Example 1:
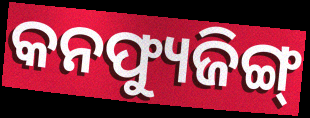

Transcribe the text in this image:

କନଫ୍ୟୁଜିଙ୍ଗ୍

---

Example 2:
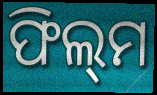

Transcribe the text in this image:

ଫିଲ୍‌ମ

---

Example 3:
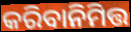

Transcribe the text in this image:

କରିବାନିମିତ୍ତ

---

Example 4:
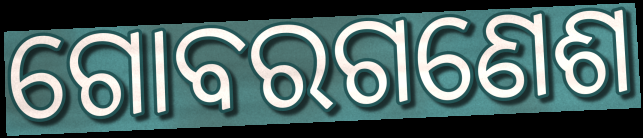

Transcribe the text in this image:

ଗୋବରଗଣେଶ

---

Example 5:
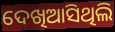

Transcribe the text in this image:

ଦେଖିଆସିଥିଲି